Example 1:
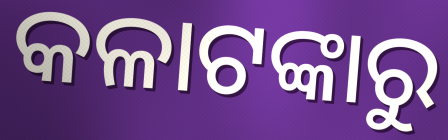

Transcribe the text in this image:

କଳାଟଙ୍କାରୁ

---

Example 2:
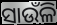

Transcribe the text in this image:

ସାଉଁଳି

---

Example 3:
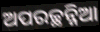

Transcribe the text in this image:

ଅପରଚ୍ଛନ୍ନିଆ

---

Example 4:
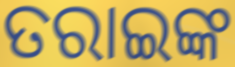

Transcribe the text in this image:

ତରାଇଙ୍କ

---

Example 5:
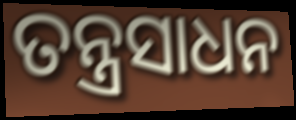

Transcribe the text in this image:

ତନ୍ତ୍ରସାଧନ